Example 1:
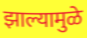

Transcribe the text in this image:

झाल्यामुळे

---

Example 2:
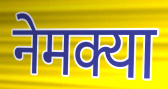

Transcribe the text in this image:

नेमक्या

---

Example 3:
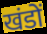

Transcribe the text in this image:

खंडों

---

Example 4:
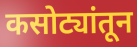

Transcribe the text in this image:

कसोट्यांतून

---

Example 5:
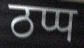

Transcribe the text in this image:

ठप्प